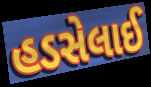
હડસેલાઈ